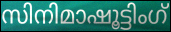
സിനിമാഷൂട്ടിംഗ്